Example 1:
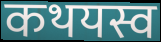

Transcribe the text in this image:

कथयस्व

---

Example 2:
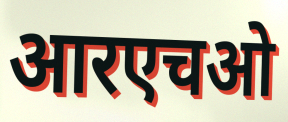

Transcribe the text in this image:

आरएचओ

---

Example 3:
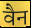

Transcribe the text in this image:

वैन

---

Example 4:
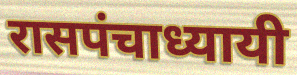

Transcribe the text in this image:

रासपंचाध्यायी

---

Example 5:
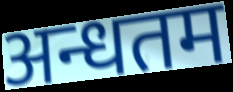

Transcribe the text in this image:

अन्धतम